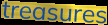
treasures